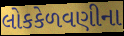
લોકકેળવણીના